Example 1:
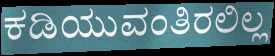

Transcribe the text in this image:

ಕಡಿಯುವಂತಿರಲಿಲ್ಲ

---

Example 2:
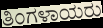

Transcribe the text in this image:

ತಿಂಗಳಾಯರು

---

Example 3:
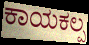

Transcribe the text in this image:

ಕಾಯಕಲ್ಪ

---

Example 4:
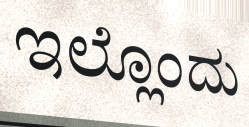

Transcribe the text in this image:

ಇಲ್ಲೊಂದು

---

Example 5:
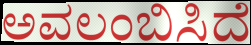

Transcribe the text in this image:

ಅವಲಂಬಿಸಿದೆ